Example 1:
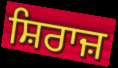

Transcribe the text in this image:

ਸ਼ਿਰਾਜ਼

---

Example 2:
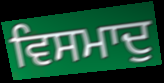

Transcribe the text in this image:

ਵਿਸਮਾਦੁ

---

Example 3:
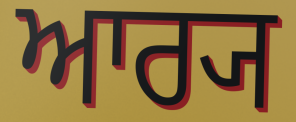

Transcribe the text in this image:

ਆਰ੍ਯ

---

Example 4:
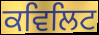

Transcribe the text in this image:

ਕਵਿਲਿਟ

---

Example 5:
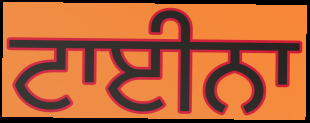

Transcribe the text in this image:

ਟਾਈਨਾ